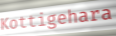
Kottigehara